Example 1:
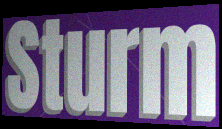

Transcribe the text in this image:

Sturm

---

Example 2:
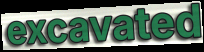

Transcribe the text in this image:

excavated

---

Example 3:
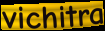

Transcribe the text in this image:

vichitra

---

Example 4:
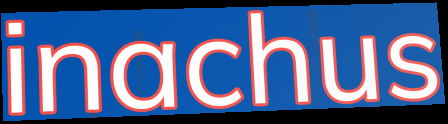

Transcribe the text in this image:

inachus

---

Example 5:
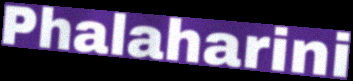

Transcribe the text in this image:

Phalaharini